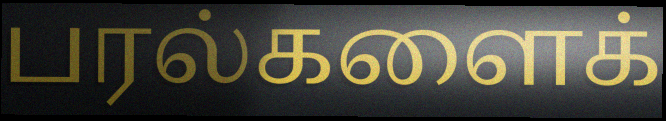
பரல்களைக்